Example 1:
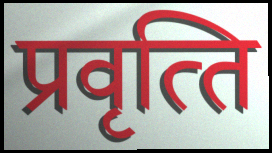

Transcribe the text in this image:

प्रवृत्‍ति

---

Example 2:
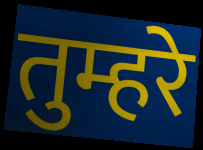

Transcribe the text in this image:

तुम्हरे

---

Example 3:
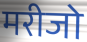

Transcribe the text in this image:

मरीजो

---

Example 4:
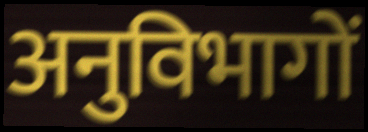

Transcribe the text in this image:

अनुविभागों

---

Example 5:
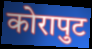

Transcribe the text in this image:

कोरापुट